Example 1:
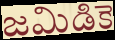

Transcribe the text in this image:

జమిడికె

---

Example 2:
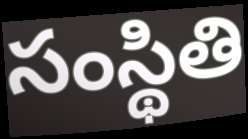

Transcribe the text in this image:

సంస్థితి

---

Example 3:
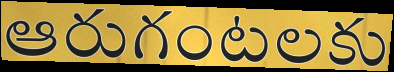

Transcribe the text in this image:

ఆరుగంటలకు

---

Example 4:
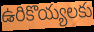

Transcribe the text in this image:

ఉరికొయ్యలకు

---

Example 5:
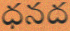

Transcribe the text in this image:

ధనద